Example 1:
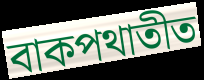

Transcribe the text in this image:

বাকপথাতীত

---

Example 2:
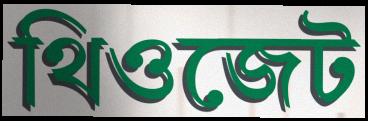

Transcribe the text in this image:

থিওজেট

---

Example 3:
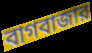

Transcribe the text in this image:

বাগবাজার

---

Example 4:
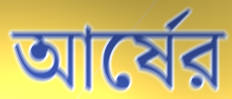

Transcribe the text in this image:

আর্ষের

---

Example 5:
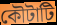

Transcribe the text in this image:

কৌটাটি